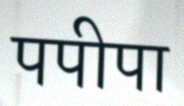
पपीपा